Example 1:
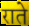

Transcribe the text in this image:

राते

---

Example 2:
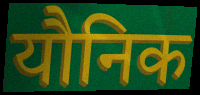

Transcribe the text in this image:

यौनिक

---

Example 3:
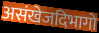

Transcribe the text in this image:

असंखेजदिभागो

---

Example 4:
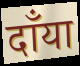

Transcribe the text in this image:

दाँया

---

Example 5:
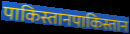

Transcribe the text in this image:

पाकिस्तानपाकिस्तान